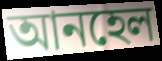
আনহেল